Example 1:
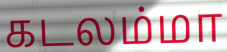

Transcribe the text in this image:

கடலம்மா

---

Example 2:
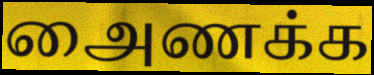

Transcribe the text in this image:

அைணக்க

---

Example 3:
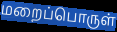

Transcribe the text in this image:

மறைப்பொருள்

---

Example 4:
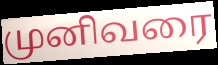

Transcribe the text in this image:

முனிவரை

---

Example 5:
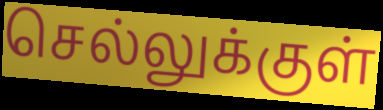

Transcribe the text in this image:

செல்லுக்குள்